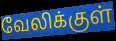
வேலிக்குள்